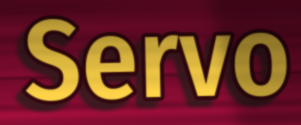
Servo